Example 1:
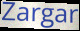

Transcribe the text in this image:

Zargar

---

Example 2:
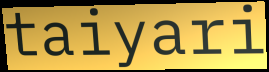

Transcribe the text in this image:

taiyari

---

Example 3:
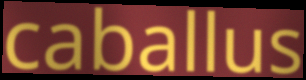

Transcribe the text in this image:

caballus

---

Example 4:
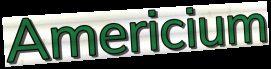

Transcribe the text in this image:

Americium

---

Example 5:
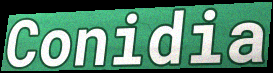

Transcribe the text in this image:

Conidia